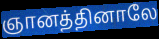
ஞானத்தினாலே